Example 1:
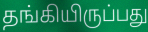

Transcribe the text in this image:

தங்கியிருப்பது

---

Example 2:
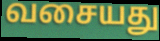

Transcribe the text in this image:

வசையது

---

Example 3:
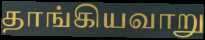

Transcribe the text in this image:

தாங்கியவாறு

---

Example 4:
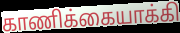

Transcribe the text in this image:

காணிக்கையாக்கி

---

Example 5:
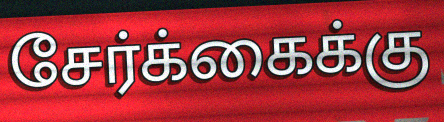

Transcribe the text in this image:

சேர்க்கைக்கு